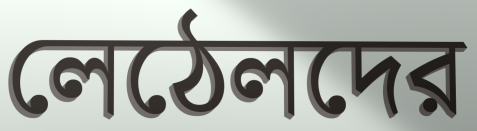
লেঠেলদের